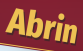
Abrin